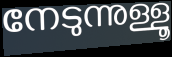
നേടുന്നുള്ളൂ